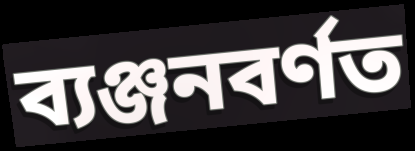
ব্যঞ্জনবৰ্ণত